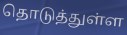
தொடுத்துள்ள